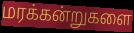
மரக்கன்றுகளை